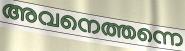
അവനെത്തന്നെ